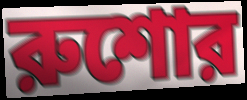
রুশোর